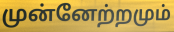
முன்னேற்றமும்